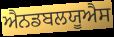
ਐਨਡਬਲਯੂਐਸ